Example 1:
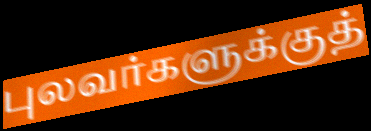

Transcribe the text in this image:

புலவர்களுக்குத்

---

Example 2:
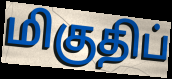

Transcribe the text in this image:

மிகுதிப்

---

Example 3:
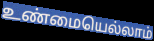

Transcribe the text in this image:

உண்மையெல்லாம்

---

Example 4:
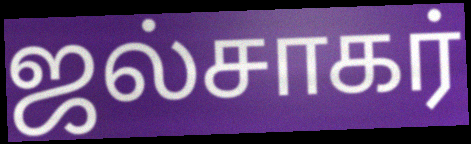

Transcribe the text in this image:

ஜல்சாகர்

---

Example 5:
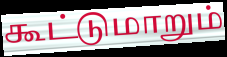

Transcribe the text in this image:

கூட்டுமாறும்